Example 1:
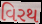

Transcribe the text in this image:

વિરથ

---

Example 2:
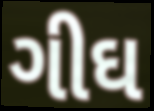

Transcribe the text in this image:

ગીઘ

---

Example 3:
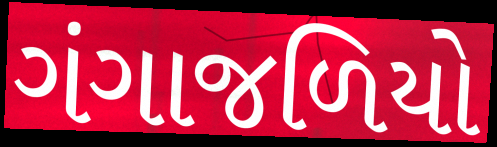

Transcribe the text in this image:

ગંગાજળિયો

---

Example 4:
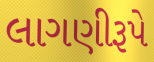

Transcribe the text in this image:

લાગણીરૂપે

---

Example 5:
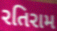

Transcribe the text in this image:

રતિરામ